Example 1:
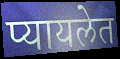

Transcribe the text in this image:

प्यायलेत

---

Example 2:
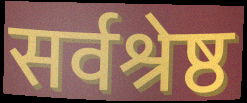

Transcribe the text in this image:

सर्वश्रेष्ठ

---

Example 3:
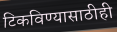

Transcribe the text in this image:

टिकविण्यासाठीही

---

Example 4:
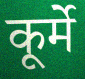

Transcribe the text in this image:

कूर्मे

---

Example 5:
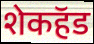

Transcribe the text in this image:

शेकहॅड